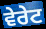
ਵੇਰੇਟ